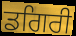
ਡਗਿਰੀ